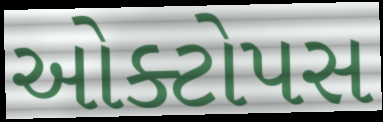
ઓક્ટોપસ